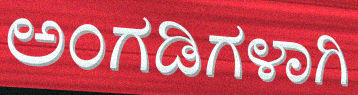
ಅಂಗಡಿಗಳಾಗಿ